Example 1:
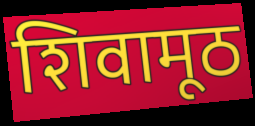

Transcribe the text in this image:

शिवामूठ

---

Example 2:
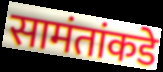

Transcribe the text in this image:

सामंतांकडे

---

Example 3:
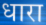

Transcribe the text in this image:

धारा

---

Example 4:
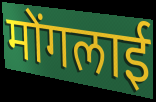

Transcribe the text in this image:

मोंगलाई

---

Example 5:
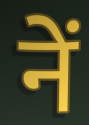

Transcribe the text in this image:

नें